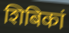
शिबिकां